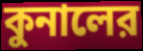
কুনালের